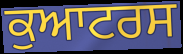
ਕੁਆਟਰਸ